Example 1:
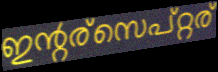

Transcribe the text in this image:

ഇന്റര്സെപ്റ്റര്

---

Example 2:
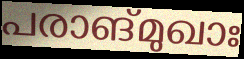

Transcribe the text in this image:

പരാങ്മുഖാഃ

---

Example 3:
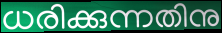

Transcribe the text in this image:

ധരിക്കുന്നതിനു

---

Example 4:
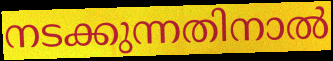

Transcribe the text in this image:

നടക്കുന്നതിനാൽ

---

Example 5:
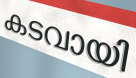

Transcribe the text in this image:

കടവായി